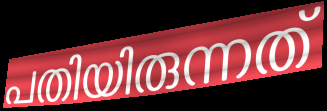
പതിയിരുന്നത്